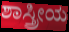
ಶಾಸ್ತ್ರೀಯ